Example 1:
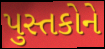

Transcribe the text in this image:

પુસ્તકોને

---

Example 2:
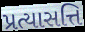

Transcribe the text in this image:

પ્રત્યાસત્તિ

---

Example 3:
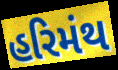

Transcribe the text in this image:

હરિમંથ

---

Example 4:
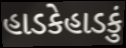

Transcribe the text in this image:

હાડકેહાડકું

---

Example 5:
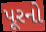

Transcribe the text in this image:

પૂરનો